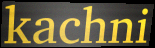
kachni